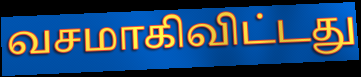
வசமாகிவிட்டது